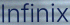
Infinix